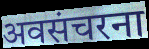
अवसंचरना